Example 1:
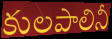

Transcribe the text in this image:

కులపాలినీ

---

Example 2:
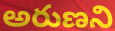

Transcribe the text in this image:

అరుణని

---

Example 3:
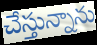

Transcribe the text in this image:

చేస్తున్నాను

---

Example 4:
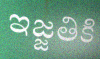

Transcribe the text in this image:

ఇజ్జతికి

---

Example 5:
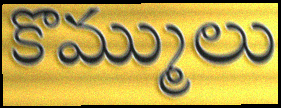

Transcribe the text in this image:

కొమ్ములు